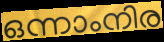
ഒന്നാംനിര